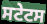
ਸਟੇਟਸ